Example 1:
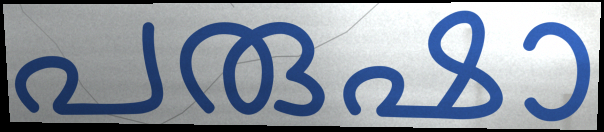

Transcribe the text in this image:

പരുഷാ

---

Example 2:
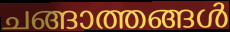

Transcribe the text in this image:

ചങ്ങാത്തങ്ങൾ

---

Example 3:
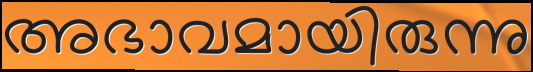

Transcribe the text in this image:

അഭാവമായിരുന്നു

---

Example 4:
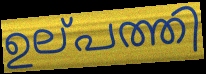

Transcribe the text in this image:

ഉല്‌പത്തി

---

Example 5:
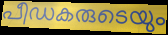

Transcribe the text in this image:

പീഡകരുടെയും